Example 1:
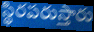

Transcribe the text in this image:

స్థిరపరుస్తారు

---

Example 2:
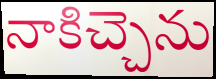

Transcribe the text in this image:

నాకిచ్చెను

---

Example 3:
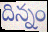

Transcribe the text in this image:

దిన్నం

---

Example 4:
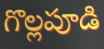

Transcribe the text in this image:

గొల్లపూడి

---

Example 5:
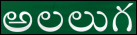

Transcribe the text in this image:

అలలుగ